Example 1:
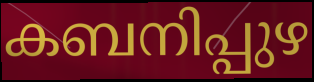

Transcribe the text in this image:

കബനിപ്പുഴ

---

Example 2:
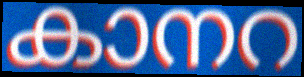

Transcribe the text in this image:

കാനറ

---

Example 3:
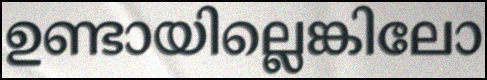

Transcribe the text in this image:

ഉണ്ടായില്ലെങ്കിലോ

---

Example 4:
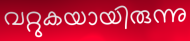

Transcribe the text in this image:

വറ്റുകയായിരുന്നു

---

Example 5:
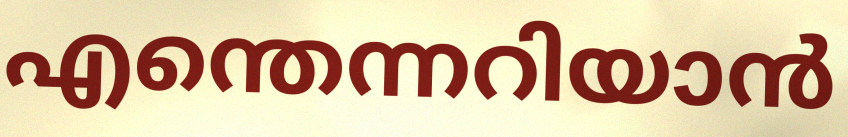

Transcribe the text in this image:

എന്തെന്നറിയാൻ